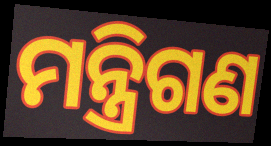
ମନ୍ତ୍ରିଗଣ